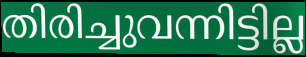
തിരിച്ചുവന്നിട്ടില്ല